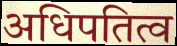
अधिपतित्व